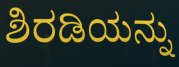
ಶಿರಡಿಯನ್ನು